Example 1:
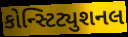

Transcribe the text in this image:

કોન્સ્ટિટ્યુશનલ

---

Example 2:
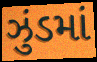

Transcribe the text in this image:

ઝુંડમાં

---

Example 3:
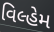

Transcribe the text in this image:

વિલ્હેમ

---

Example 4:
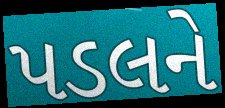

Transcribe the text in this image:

પડલને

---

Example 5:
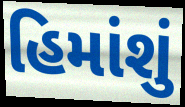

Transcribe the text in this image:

હિમાંશું